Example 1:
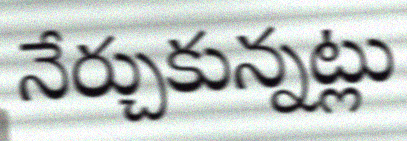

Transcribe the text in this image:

నేర్చుకున్నట్లు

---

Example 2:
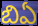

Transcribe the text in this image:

బిఏ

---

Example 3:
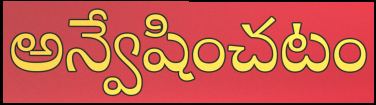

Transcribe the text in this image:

అన్వేషించటం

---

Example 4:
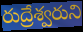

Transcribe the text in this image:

రుద్రేశ్వరుని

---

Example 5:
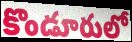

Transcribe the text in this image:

కొండూరులో